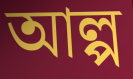
আল্প